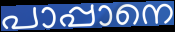
പാപ്പാനെ